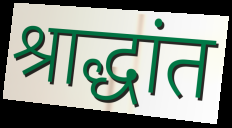
श्राद्धांत